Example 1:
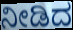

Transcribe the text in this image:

ನೀಡಿದ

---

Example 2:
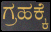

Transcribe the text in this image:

ಗ್ರಹಕ್ಕೆ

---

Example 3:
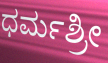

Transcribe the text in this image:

ಧರ್ಮಶ್ರೀ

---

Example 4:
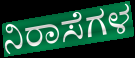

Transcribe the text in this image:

ನಿರಾಸೆಗಳ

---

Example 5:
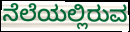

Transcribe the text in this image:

ನೆಲೆಯಲ್ಲಿರುವ